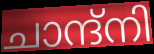
ചാന്ദ്നി